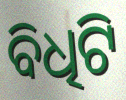
ବିଧିଟି